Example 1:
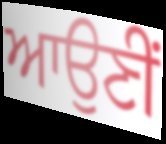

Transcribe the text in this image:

ਆਉਣੀੰ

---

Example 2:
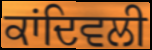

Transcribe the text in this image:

ਕਾਂਦਿਵਲੀ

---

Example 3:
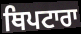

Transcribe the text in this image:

ਥਿਪਟਾਰਾ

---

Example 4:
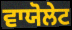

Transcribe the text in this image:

ਵਾਯੋਲੇਟ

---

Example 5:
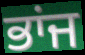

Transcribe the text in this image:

ਭਾਂਜ